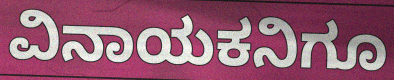
ವಿನಾಯಕನಿಗೂ